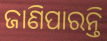
ଜାଣିପାରନ୍ତି